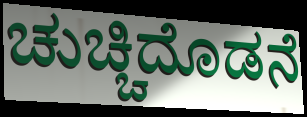
ಚುಚ್ಚಿದೊಡನೆ